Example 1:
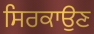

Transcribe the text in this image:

ਸਿਰਕਾਉਣ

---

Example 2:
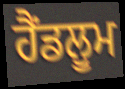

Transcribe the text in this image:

ਹੈਂਡਲੂਮ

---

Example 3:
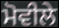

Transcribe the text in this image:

ਮੋਵੀਲੇ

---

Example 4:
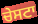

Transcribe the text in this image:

ਚੇਸਟਾ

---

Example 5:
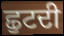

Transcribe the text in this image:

ਛੁਟਦੀ